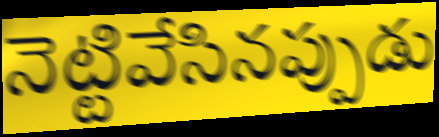
నెట్టివేసినప్పుడు